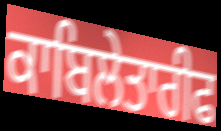
ਕਾਬਿਲੇਤਾਰੀਫ